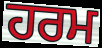
ਹਰਮ